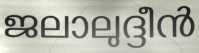
ജലാലുദ്ദീൻ